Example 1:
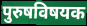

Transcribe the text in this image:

पुरुषविषयक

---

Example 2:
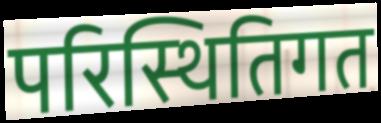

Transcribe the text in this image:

परिस्थितिगत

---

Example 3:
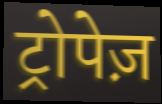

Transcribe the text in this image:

ट्रोपेज़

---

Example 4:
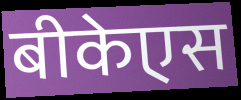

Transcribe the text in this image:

बीकेएस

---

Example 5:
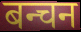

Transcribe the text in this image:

बन्चन